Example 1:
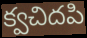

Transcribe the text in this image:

క్వచిదపి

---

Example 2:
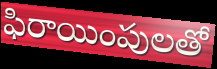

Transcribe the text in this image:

ఫిరాయింపులతో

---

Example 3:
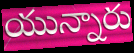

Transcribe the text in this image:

యున్నారు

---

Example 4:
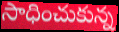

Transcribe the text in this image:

సాధించుకున్న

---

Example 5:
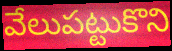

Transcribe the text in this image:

వేలుపట్టుకొని